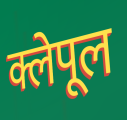
क्लेपूल